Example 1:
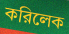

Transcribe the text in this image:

করিলেক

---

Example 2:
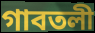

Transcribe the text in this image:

গাবতলী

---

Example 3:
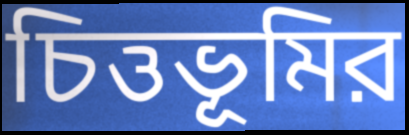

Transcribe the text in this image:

চিত্তভূমির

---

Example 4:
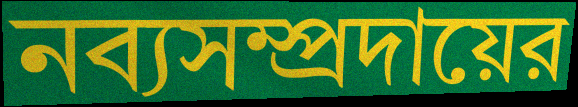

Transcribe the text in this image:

নব্যসম্প্রদায়ের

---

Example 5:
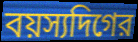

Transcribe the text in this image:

বয়স্যদিগের